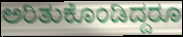
ಅರಿತುಕೊಂಡಿದ್ದರೂ